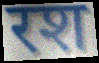
रश